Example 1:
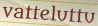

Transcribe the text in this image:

vatteluttu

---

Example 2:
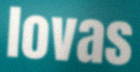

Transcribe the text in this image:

lovas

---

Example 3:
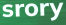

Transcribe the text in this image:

srory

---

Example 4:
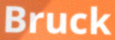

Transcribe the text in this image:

Bruck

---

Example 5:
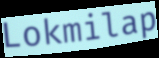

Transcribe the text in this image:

Lokmilap